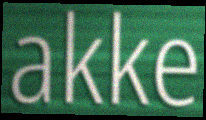
akke